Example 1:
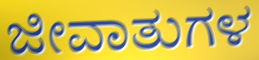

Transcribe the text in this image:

ಜೀವಾತುಗಳ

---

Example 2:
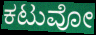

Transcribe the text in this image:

ಕಟುವೋ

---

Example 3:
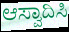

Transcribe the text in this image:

ಆಸ್ವಾದಿಸಿ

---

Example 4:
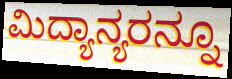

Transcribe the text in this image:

ಮಿದ್ಯಾನ್ಯರನ್ನೂ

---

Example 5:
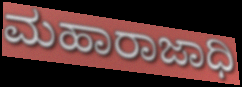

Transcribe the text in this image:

ಮಹಾರಾಜಾಧಿ